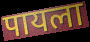
पायला